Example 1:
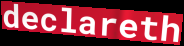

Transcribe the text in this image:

declareth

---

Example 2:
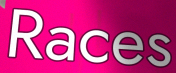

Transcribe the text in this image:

Races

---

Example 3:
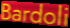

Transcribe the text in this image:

Bardoli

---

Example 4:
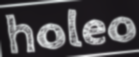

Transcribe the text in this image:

holeo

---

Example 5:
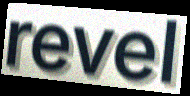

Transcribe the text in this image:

revel